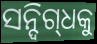
ସନ୍ଦିଗ୍‌ଧକୁ